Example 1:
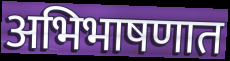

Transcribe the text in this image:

अभिभाषणात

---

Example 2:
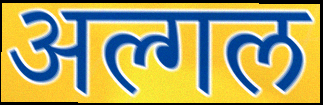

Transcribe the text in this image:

अल्गल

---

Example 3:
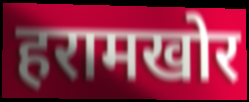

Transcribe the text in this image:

हरामखोर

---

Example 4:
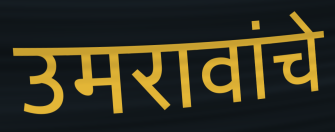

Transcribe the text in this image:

उमरावांचे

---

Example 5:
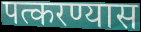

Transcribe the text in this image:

पत्करण्यास